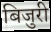
बिजुरी